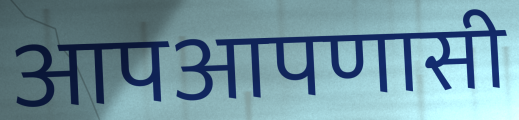
आपआपणासी